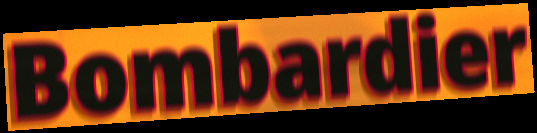
Bombardier